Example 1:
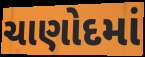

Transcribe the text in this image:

ચાણોદમાં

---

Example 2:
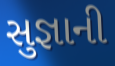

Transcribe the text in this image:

સુજ્ઞાની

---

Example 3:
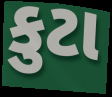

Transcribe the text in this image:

કુટા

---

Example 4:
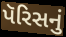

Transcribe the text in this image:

પૅરિસનું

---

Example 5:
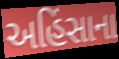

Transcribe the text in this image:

અહિંસાના